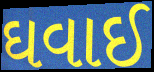
ઘવાઈ